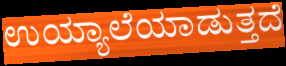
ಉಯ್ಯಾಲೆಯಾಡುತ್ತದೆ